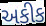
અકીક